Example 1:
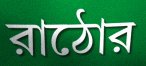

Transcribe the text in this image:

রাঠোর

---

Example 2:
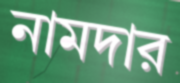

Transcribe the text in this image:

নামদার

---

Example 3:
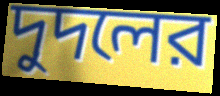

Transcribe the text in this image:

দুদলের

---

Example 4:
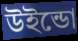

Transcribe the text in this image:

উইন্ডো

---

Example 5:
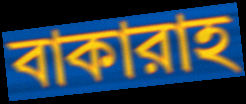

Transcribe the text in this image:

বাকারাহ